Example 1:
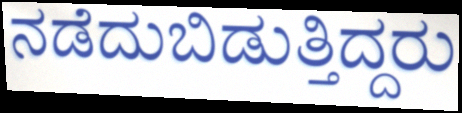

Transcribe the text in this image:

ನಡೆದುಬಿಡುತ್ತಿದ್ದರು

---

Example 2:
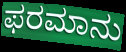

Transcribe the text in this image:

ಫರಮಾನು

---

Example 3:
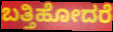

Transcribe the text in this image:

ಬತ್ತಿಹೋದರೆ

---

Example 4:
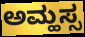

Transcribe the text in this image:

ಅಮ್ಹಸ್ಸ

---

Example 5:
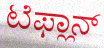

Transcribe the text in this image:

ಟೆಫ್ಲಾನ್